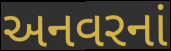
અનવરનાં